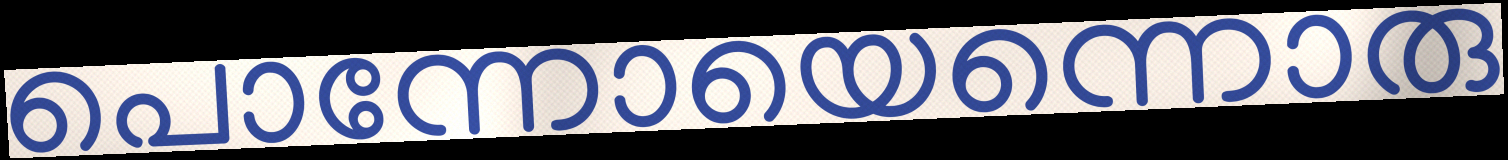
പൊന്നോയെന്നൊരു